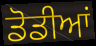
ਡੋਡੀਆਂ